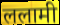
ललामी